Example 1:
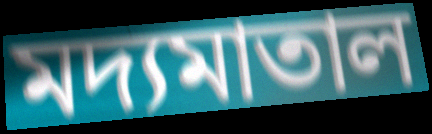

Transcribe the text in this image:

মদ্যমাতাল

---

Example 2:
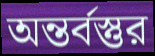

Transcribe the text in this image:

অন্তর্বস্তুর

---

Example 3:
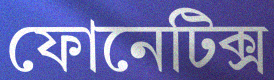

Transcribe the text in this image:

ফোনেটিক্স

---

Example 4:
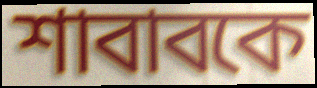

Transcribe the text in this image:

শাবাবকে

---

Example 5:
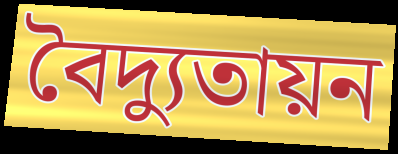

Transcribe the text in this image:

বৈদ্যুতায়ন